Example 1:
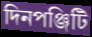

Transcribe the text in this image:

দিনপঞ্জিটি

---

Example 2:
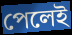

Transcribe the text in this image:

পেলেই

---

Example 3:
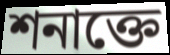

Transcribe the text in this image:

শনাক্তে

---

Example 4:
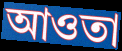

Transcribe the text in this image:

আওতা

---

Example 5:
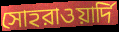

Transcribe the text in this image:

সোহরাওয়ার্দি